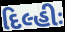
દિલ્હીઃ